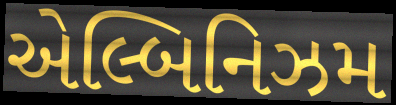
એલ્બિનિઝમ